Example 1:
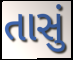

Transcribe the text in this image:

તાસું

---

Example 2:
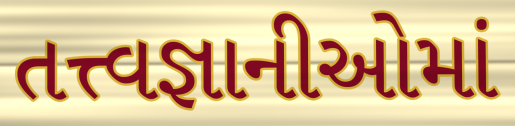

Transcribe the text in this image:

તત્ત્વજ્ઞાનીઓમાં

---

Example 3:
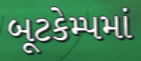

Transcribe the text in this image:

બૂટકેમ્પમાં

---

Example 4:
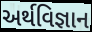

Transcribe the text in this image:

અર્થવિજ્ઞાન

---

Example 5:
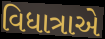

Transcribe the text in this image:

વિધાત્રાએ